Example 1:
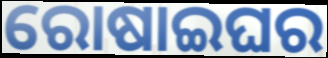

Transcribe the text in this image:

ରୋଷାଇଘର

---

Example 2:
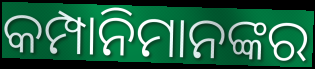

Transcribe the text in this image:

କମ୍ପାନିମାନଙ୍କର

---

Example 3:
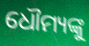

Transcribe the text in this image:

ଧୌମ୍ୟଙ୍କୁ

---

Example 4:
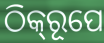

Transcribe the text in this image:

ଠିକ୍‌ରୂପେ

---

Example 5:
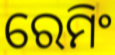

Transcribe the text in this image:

ରେମିଂ